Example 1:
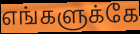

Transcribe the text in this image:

எங்களுக்கே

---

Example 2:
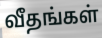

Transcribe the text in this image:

வீதங்கள்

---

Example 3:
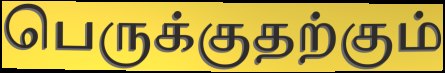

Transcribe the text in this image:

பெருக்குதற்கும்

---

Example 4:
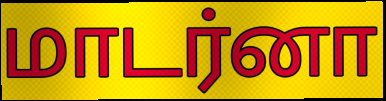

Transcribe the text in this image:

மாடர்னா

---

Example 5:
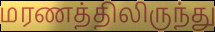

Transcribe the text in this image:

மரணத்திலிருந்து